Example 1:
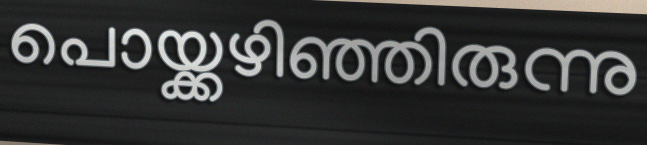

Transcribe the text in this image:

പൊയ്ക്കഴിഞ്ഞിരുന്നു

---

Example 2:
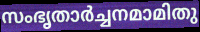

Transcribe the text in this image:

സംഭൃതാർച്ചനമാമിതു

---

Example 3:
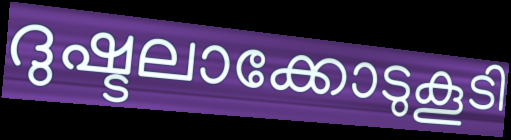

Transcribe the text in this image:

ദുഷ്ടലാക്കോടുകൂടി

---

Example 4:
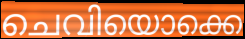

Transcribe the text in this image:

ചെവിയൊക്കെ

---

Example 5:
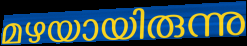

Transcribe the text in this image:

മഴയായിരുന്നു